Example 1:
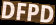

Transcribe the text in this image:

DFPD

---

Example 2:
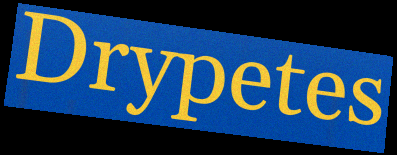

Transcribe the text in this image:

Drypetes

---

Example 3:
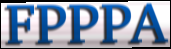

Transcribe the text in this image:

FPPPA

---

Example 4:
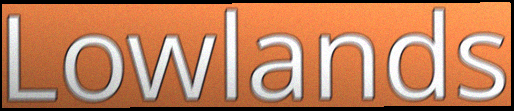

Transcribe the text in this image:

Lowlands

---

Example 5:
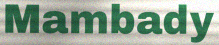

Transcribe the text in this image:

Mambady